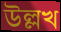
উল্লখ